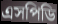
এসপিডি